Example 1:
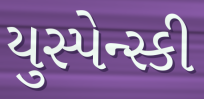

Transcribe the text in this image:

યુસ્પેન્સ્કી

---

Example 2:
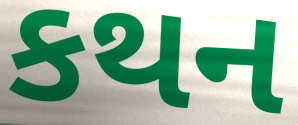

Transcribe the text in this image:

કથન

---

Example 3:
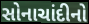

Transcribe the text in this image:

સોનાચાંદીનો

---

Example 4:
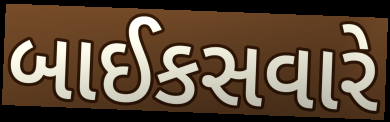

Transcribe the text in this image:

બાઈકસવારે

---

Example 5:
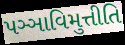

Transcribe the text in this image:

પઞ્ઞાવિમુત્તીતિ